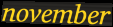
november